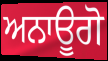
ਅਨਾਊਗੋ